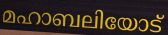
മഹാബലിയോട്